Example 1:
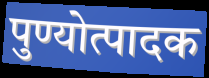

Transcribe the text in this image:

पुण्योत्पादक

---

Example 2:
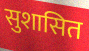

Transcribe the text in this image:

सुशासित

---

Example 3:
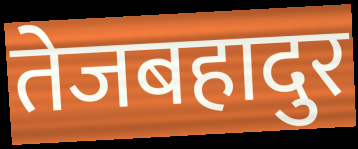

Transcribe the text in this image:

तेजबहादुर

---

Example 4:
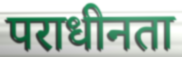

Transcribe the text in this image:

पराधीनता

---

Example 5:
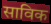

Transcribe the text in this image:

साविक